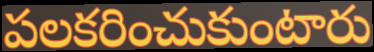
పలకరించుకుంటారు